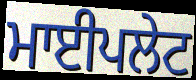
ਮਾਈਪਲੇਟ